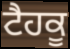
ਟੈਹਕੂ